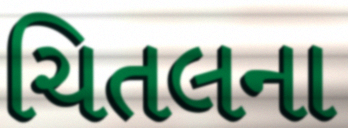
ચિતલના